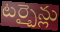
టర్బైన్లు